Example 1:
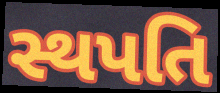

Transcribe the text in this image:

સ્થપતિ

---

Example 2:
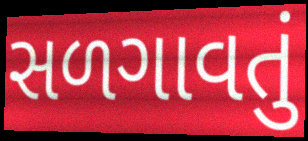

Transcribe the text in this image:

સળગાવતું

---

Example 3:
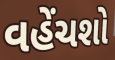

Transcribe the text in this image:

વહેંચશો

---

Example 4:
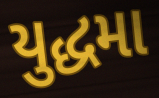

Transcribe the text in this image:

યુદ્ધમા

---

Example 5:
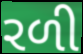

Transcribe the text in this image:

રળી